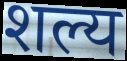
शल्य